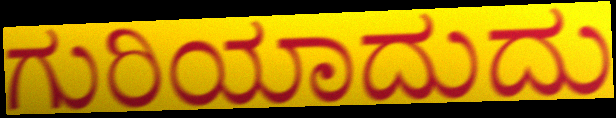
ಗುರಿಯಾದುದು